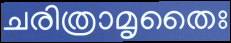
ചരിത്രാമൃതൈഃ